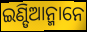
ଇଣ୍ଡିଆନ୍ମାନେ